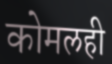
कोमलही